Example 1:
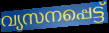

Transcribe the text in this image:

വ്യസനപ്പെട്ട്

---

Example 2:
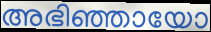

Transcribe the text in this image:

അഭിഞ്ഞായോ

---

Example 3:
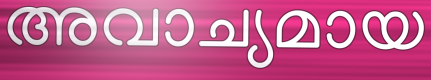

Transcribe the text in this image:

അവാച്യമായ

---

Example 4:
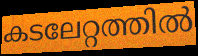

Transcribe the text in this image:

കടലേറ്റത്തിൽ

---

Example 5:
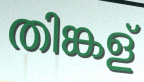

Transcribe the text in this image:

തിങ്കള്